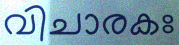
വിചാരകഃ